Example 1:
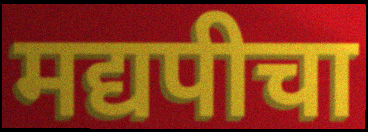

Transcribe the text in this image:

मद्यपीचा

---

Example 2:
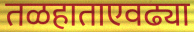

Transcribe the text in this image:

तळहाताएवढ्या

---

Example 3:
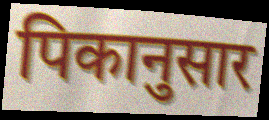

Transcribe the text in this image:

पिकानुसार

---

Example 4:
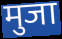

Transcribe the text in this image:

मुजा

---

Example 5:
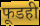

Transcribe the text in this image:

फूडही